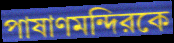
পাষাণমন্দিরকে